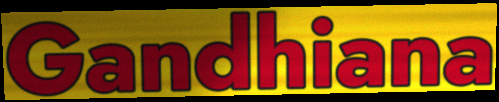
Gandhiana